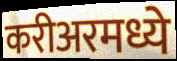
करीअरमध्ये